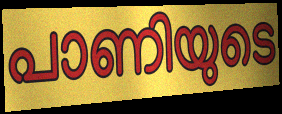
പാണിയുടെ